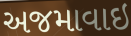
અજમાવાઇ